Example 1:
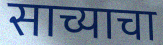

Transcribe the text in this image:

साच्याचा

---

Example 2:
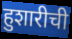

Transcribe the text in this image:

हुशारीची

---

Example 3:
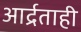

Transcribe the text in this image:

आर्द्रताही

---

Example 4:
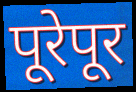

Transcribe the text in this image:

पूरेपूर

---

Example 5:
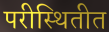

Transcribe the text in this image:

परीस्थितीत